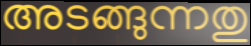
അടങ്ങുന്നതു